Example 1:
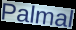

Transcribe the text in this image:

Palmal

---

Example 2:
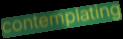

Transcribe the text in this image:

contemplating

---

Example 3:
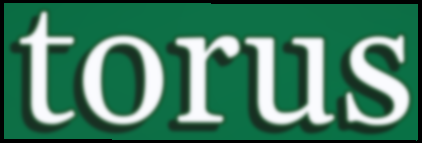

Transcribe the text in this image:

torus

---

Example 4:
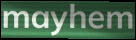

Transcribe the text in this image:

mayhem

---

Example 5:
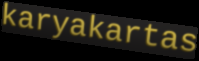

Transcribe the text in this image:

karyakartas